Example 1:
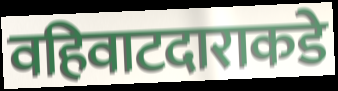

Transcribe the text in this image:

वहिवाटदाराकडे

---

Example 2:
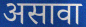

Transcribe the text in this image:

असावा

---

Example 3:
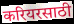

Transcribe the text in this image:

करियरसाठी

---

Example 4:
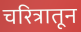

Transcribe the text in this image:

चरित्रातून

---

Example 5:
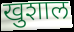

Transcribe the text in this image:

खुशाल